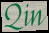
Qin